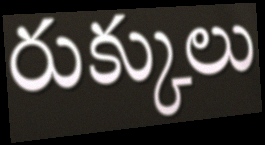
రుక్కులు